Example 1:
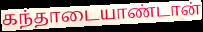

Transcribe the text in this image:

கந்தாடையாண்டான்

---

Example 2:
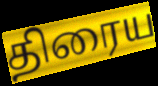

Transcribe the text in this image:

திரைய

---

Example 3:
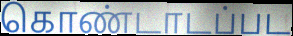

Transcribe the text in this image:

கொண்டாடப்பட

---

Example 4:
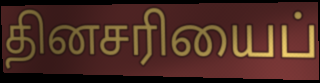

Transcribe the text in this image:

தினசரியைப்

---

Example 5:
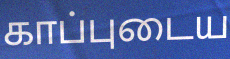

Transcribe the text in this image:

காப்புடைய